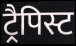
ट्रैपिस्ट